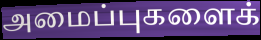
அமைப்புகளைக்